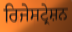
ਰਿਜੇਸਟ੍ਰੇਸ਼ਨ